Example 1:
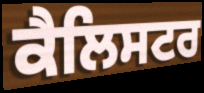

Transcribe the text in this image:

ਕੈਲਿਸਟਰ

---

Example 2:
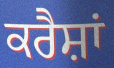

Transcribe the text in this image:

ਕਰੈਸ਼ਾਂ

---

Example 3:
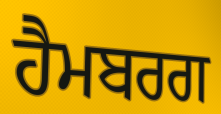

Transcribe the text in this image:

ਹੈਮਬਰਗ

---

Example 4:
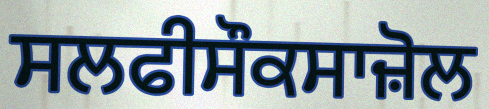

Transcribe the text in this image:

ਸਲਫੀਸੌਕਸਾਜ਼ੋਲ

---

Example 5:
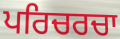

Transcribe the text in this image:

ਪਰਿਚਰਚਾ